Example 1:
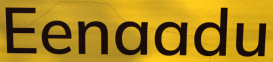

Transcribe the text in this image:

Eenaadu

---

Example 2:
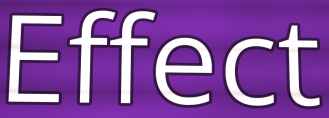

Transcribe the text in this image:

Effect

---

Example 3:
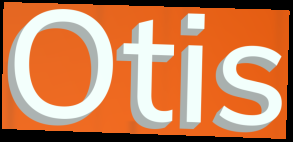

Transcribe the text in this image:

Otis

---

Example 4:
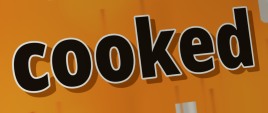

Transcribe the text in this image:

cooked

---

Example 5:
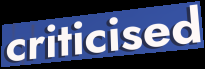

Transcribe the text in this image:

criticised